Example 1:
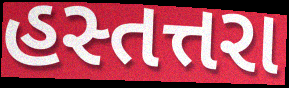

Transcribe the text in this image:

હસ્તત્તરા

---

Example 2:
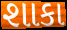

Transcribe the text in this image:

શાકા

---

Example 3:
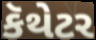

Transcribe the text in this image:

કૅથેટર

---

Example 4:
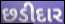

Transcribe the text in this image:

છડીદાર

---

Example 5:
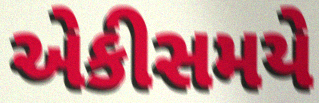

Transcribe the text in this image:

એકીસમયે